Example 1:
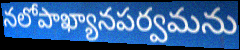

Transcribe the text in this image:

నలోపాఖ్యానపర్వమను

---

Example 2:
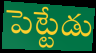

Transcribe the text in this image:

పెట్టేడు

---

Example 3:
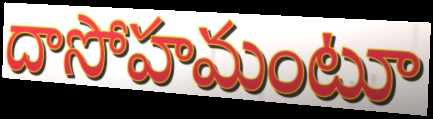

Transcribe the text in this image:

దాసోహమంటూ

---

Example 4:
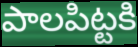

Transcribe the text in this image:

పాలపిట్టకి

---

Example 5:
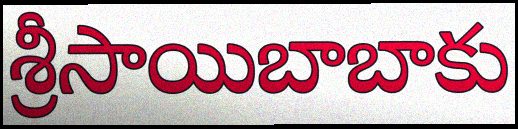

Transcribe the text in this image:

శ్రీసాయిబాబాకు